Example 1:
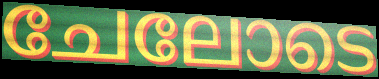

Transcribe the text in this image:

ചേലോടെ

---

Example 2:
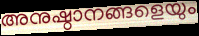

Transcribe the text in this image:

അനുഷ്ഠാനങ്ങളെയും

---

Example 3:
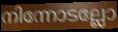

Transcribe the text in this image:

നിന്നോടല്ലോ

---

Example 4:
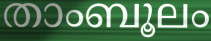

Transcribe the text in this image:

താംബൂലം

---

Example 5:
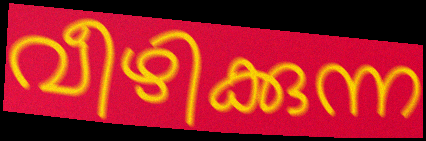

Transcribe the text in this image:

വീഴിക്കുന്ന